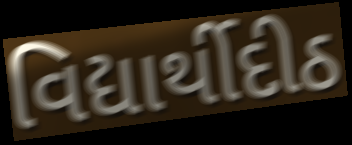
વિદ્યાર્થીદીઠ